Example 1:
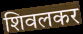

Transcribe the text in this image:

शिवलकर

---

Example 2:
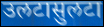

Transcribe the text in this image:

उलटासुलटा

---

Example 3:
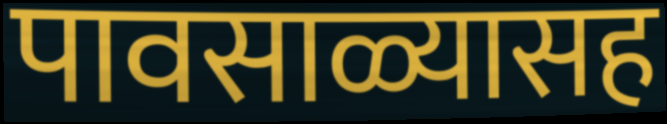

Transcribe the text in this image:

पावसाळ्यासह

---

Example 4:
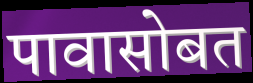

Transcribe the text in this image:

पावासोबत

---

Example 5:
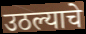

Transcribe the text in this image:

उठल्याचे